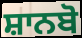
ਸ਼ਾਨਬੋ